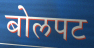
बोलपट